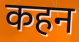
कहन